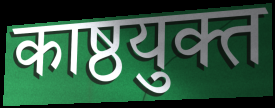
काष्ठयुक्त